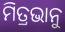
ମିତ୍ରଭାନୁ